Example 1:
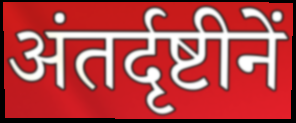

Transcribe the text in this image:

अंतर्दृष्टीनें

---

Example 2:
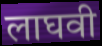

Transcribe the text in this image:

लाघवी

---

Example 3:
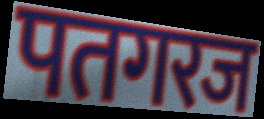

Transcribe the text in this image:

पतगरज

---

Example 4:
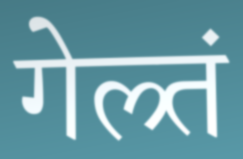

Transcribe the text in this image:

गेल्तं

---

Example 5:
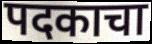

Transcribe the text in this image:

पदकाचा